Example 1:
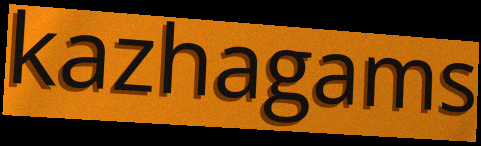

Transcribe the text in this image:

kazhagams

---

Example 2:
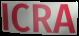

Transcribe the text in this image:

ICRA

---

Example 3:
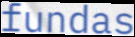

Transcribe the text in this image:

fundas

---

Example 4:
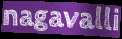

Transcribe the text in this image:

nagavalli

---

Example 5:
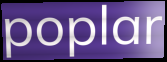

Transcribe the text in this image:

poplar